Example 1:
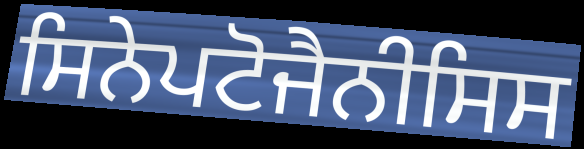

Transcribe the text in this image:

ਸਿਨੇਪਟੋਜੈਨੀਸਿਸ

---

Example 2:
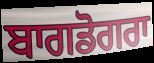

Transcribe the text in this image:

ਬਾਗਡੋਗਰਾ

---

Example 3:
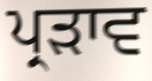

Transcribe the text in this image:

ਪ੍ਰੜਾਵ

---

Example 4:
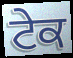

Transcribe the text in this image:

ਟੇਕ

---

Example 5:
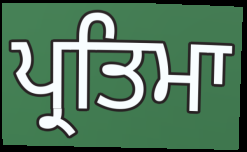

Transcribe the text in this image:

ਪ੍ਰਤਿਮਾ